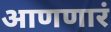
आणणारं